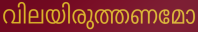
വിലയിരുത്തണമോ